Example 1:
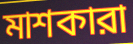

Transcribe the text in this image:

মাশকারা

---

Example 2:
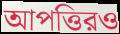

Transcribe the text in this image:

আপত্তিরও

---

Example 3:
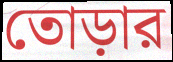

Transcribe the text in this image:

তোড়ার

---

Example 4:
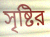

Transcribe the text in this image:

সৃষ্টির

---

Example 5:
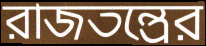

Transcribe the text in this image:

রাজতন্ত্রের